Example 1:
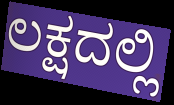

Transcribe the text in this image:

ಲಕ್ಷದಲ್ಲಿ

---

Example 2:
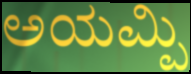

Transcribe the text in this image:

ಅಯಮ್ಪಿ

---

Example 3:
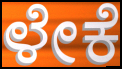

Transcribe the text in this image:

ಳೇಕೆ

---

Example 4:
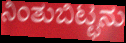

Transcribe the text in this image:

ನಿಂತುಬಿಟ್ಟನು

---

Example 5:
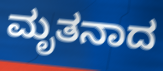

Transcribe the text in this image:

ಮೃತನಾದ